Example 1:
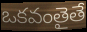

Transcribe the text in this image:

ఒకవంతైతే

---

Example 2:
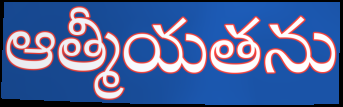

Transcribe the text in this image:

ఆత్మీయతను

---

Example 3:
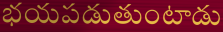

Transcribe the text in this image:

భయపడుతుంటాడు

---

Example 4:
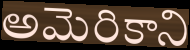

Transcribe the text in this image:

అమెరికాని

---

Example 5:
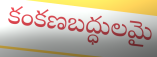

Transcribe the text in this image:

కంకణబద్ధులమై